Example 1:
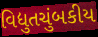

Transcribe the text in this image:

વિદ્યુતચુંબકીય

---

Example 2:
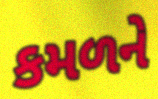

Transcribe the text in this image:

કમળને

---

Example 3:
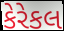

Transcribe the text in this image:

કેરેકલ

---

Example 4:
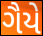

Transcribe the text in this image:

ગૈયે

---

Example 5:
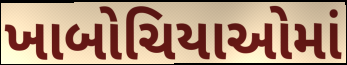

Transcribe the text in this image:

ખાબોચિયાઓમાં